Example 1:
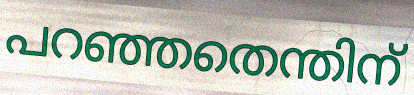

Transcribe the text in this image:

പറഞ്ഞതെന്തിന്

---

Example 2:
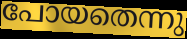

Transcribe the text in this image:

പോയതെന്നു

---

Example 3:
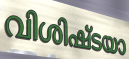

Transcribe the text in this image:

വിശിഷ്ടയാ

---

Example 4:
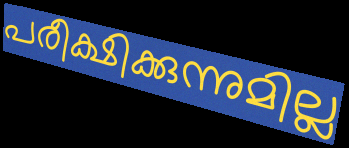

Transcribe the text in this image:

പരീക്ഷിക്കുന്നുമില്ല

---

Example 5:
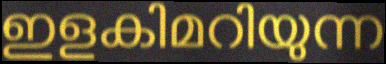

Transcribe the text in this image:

ഇളകിമറിയുന്ന